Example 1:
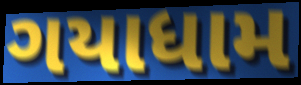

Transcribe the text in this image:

ગયાધામ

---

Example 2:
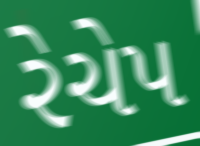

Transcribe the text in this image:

રેચેપ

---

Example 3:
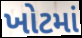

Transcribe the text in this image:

ખોટમાં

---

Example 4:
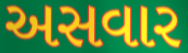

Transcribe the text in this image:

અસવાર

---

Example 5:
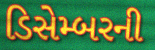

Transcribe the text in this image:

ડિસેમ્બરની